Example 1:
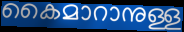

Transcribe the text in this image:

കൈമാറാനുള്ള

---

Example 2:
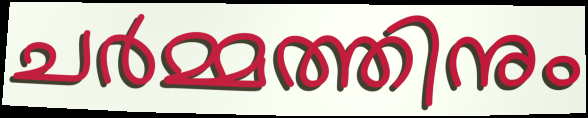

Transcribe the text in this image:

ചർമ്മത്തിനും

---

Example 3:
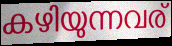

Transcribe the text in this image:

കഴിയുന്നവര്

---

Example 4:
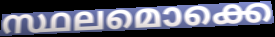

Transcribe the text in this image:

സ്ഥലമൊക്കെ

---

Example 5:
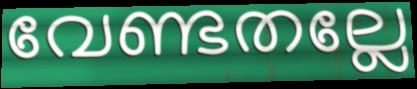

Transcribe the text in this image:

വേണ്ടതല്ലേ